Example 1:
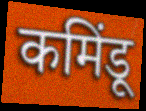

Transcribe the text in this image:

कमिंडू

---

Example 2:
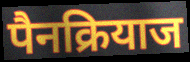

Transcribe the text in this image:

पैनक्रियाज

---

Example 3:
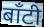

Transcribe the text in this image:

बाँटी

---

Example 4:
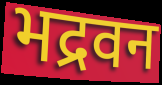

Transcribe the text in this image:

भद्रवन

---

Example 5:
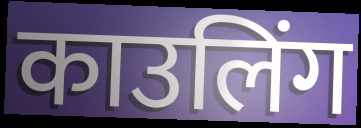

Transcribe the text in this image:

काउलिंग